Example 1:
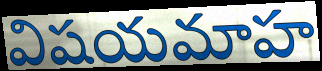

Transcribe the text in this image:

విషయమాహ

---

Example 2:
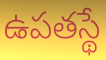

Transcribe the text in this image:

ఉపతస్థే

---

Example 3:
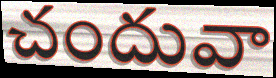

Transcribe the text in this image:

చందువా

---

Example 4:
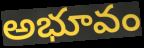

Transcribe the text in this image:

అభూవం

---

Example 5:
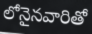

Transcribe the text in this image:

లోనైనవారితో